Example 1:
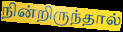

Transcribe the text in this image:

நின்றிருந்தால்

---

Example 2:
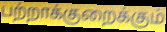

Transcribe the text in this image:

பற்றாக்குறைக்கும்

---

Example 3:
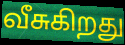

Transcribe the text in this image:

வீசுகிறது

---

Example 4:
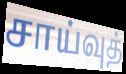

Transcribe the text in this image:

சாய்வுத்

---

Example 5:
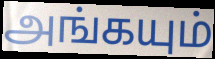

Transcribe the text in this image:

அங்கயும்